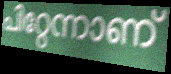
പിറ്റേന്നാണ്